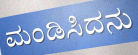
ಮಂಡಿಸಿದನು